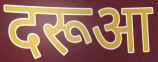
दरूआ